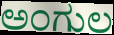
ಅಂಗುಲ